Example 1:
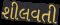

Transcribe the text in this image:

શીલવતી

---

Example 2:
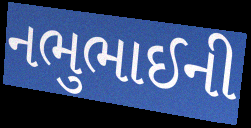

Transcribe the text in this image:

નભુભાઈની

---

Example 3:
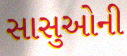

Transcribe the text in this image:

સાસુઓની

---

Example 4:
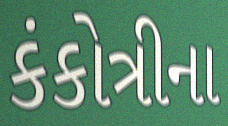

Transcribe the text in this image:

કંકોત્રીના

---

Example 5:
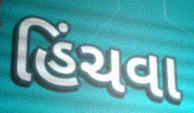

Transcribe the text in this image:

હિંચવા